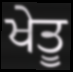
ਖੇਤੂ